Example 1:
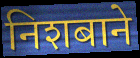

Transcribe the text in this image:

निशबाने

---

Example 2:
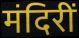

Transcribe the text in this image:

मंदिरीं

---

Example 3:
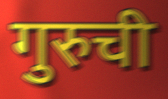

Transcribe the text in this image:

गुरुची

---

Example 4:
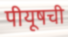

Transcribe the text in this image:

पीयूषची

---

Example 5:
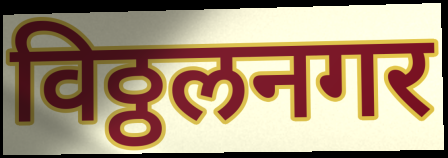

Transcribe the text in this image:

विठ्ठलनगर